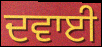
ਦਵਾਈ